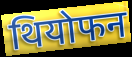
थियोफन